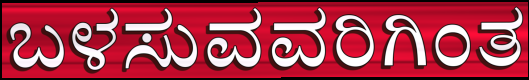
ಬಳಸುವವರಿಗಿಂತ